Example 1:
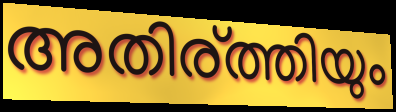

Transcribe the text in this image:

അതിര്ത്തിയും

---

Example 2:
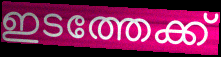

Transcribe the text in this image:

ഇടത്തേക്ക്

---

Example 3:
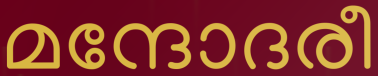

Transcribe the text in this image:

മന്ദോദരീ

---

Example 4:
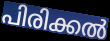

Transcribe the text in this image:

പിരിക്കൽ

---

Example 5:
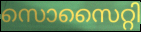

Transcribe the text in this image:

സൊസൈറ്റി